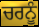
ਚਰਨੂੰ